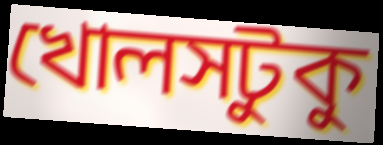
খোলসটুকু